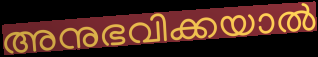
അനുഭവിക്കയാൽ